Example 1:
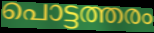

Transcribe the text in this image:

പൊട്ടത്തരം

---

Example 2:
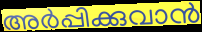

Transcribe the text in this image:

അർപ്പിക്കുവാൻ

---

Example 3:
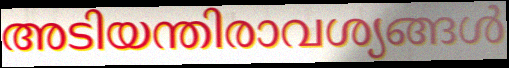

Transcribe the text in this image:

അടിയന്തിരാവശ്യങ്ങൾ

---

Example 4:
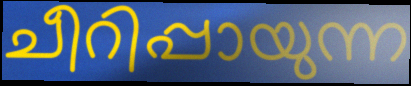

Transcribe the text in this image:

ചീറിപ്പായുന്ന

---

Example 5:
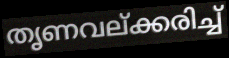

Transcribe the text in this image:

തൃണവല്ക്കരിച്ച്